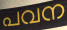
പവന